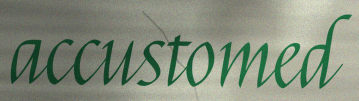
accustomed